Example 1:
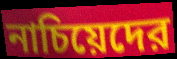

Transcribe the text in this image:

নাচিয়েদের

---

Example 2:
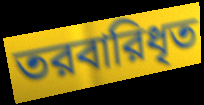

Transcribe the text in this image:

তরবারিধৃত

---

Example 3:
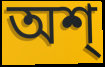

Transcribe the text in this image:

অশ্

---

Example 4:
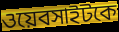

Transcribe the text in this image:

ওয়েবসাইটকে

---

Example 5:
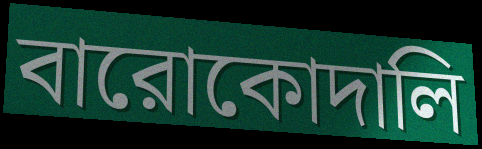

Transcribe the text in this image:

বারোকোদালি